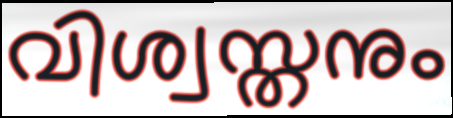
വിശ്വസ്തനും